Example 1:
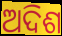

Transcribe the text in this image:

ଅଦିଶ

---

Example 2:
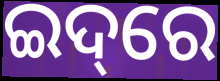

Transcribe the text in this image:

ଇଦ୍‌ରେ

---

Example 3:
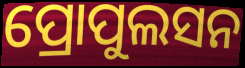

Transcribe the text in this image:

ପ୍ରୋପୁଲସନ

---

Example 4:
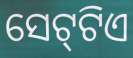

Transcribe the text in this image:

ସେଟ୍‍ଟିଏ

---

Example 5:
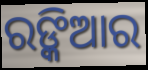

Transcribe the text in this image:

ରଙ୍କିଆର